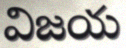
విజయ